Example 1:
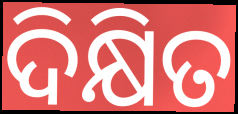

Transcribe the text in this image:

ଦିକ୍ଷିତ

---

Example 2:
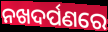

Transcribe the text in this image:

ନଖଦର୍ପଣରେ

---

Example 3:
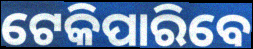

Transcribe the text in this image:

ଟେକିପାରିବେ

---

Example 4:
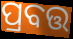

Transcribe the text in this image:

ପ୍ରବତ୍ତ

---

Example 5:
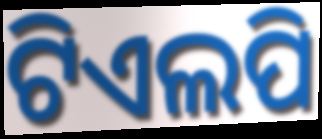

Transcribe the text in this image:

ଟିଏଲପି